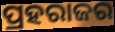
ପ୍ରହରାଜର